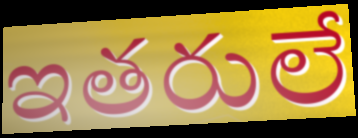
ఇతరులే